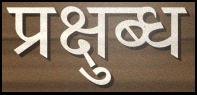
प्रक्षुब्ध